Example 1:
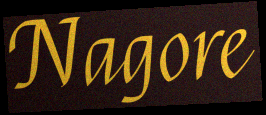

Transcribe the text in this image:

Nagore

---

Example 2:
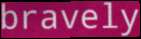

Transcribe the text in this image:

bravely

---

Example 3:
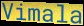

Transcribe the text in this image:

Vimala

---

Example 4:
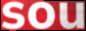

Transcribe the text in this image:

sou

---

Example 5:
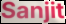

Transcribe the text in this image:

Sanjit